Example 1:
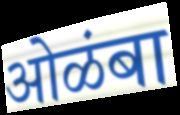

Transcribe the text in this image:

ओळंबा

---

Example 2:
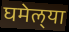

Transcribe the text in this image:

घमेल्या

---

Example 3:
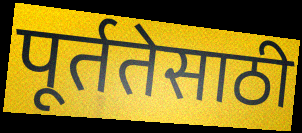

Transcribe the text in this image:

पूर्ततेसाठी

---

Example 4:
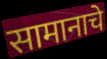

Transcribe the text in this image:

सामानाचे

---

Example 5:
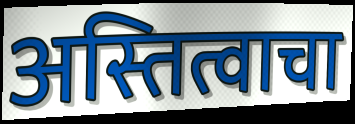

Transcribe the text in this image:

अस्तित्वाचा